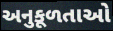
અનુકૂળતાઓ